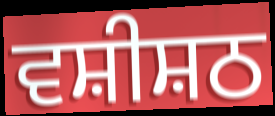
ਵਸ਼ੀਸ਼ਠ